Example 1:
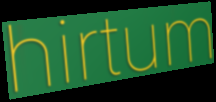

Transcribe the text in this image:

hirtum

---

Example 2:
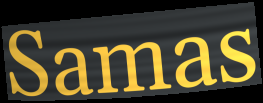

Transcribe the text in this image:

Samas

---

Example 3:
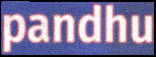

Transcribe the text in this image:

pandhu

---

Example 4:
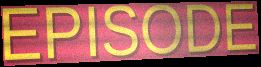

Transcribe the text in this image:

EPISODE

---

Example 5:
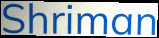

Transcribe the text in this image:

Shriman